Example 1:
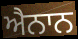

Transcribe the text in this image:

ਐਨਾਨ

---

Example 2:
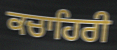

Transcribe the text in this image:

ਕਚਾਹਿਰੀ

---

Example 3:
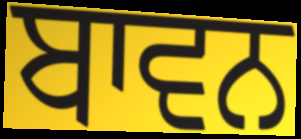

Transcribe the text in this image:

ਬਾਵਨ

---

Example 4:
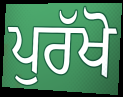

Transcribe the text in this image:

ਪੁਰੱਖੋ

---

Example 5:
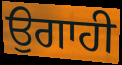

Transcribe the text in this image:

ਉਗਾਹੀ